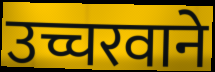
उच्चरवाने